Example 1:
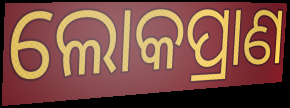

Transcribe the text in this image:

ଲୋକପ୍ରାଣ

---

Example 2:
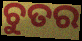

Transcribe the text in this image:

ଚୁତର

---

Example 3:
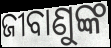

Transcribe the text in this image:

ଜୀବାଣୁଙ୍କ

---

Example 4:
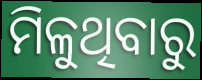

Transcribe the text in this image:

ମିଳୁଥିବାରୁ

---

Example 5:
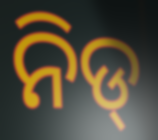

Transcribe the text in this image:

ନିଡ୍